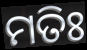
ମତିଃ